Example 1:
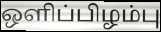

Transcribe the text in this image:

ஒளிப்பிழம்பு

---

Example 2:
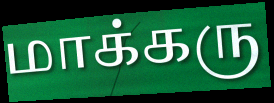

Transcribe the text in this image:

மாக்கரு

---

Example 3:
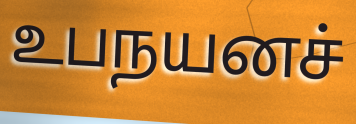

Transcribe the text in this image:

உபநயனச்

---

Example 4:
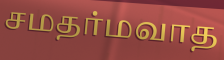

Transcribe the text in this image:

சமதர்மவாத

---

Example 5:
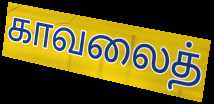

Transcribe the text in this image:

காவலைத்